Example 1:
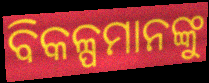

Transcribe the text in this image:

ବିକଳ୍ପମାନଙ୍କୁ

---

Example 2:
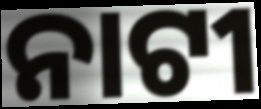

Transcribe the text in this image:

ନାଟୀ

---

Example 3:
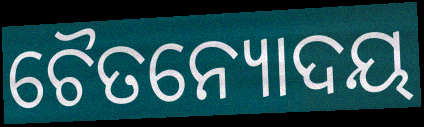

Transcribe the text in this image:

ଚୈତନ୍ୟୋଦୟ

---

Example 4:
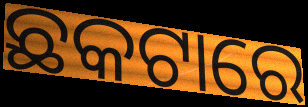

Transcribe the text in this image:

ଛକଟାରେ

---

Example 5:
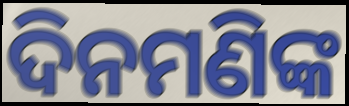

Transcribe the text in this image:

ଦିନମଣିଙ୍କ